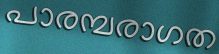
പാരമ്പരാഗത